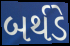
બર્થડે